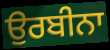
ਉਰਬੀਨਾ